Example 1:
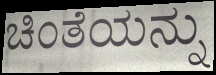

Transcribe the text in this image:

ಚಿಂತೆಯನ್ನು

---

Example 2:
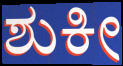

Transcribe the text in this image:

ಶುಕೀ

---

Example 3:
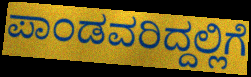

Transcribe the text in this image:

ಪಾಂಡವರಿದ್ದಲ್ಲಿಗೆ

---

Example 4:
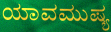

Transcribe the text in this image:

ಯಾವಮುಷ್ಯ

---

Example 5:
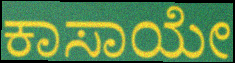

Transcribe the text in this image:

ಕಾಸಾಯೇ